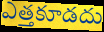
ఎత్తకూడదు